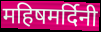
महिषमर्दिनी